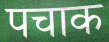
पचाक